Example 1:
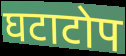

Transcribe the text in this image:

घटाटोप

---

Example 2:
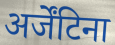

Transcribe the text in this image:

अर्जेंटिना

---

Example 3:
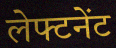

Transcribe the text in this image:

लेफ्टनेंट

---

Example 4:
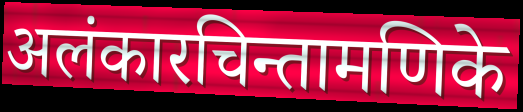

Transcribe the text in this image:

अलंकारचिन्तामणिके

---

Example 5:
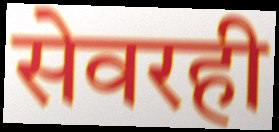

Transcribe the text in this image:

सेवरही